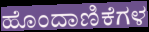
ಹೊಂದಾಣಿಕೆಗಳ